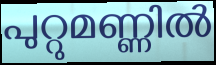
പുറ്റുമണ്ണിൽ